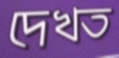
দেখত